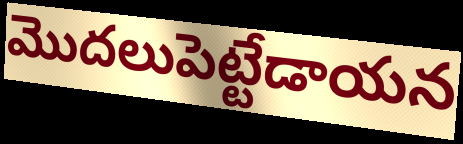
మొదలుపెట్టేడాయన